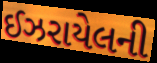
ઈઝરાયેલની